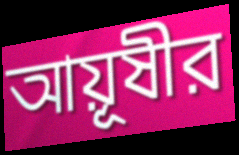
আয়ূষীর